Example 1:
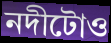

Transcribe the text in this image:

নদীটোও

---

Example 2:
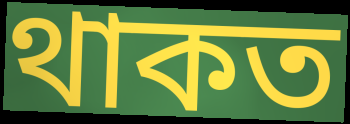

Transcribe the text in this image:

থাকত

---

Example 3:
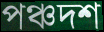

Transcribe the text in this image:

পঞ্চদশ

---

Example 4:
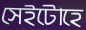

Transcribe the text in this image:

সেইটোহে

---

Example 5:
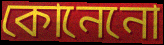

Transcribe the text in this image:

কোনেনো